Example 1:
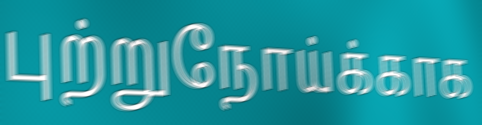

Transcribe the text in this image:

புற்றுநோய்க்காக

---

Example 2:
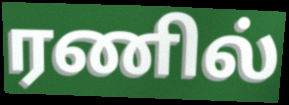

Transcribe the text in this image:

ரணில்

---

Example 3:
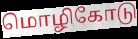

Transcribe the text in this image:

மொழிகோடு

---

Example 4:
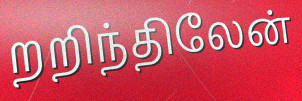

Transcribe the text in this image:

றறிந்திலேன்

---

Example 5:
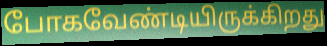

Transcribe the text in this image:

போகவேண்டியிருக்கிறது